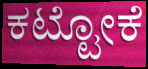
ಕಟ್ಟೋಕೆ